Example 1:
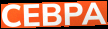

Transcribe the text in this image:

CEBPA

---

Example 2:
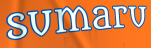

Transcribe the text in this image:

sumaru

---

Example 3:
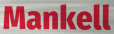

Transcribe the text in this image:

Mankell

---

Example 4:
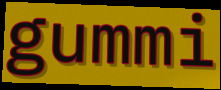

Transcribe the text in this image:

gummi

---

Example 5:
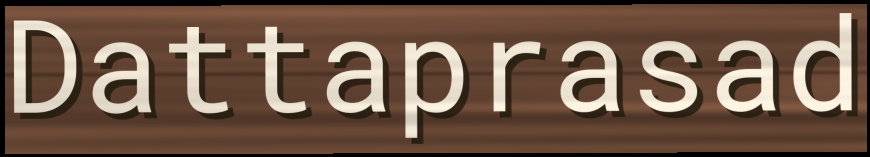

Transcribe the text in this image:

Dattaprasad